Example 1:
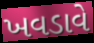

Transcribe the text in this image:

ખવડાવે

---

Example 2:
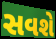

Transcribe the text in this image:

સવશે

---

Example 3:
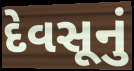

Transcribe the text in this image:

દેવસૂનું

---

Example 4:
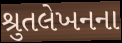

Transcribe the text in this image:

શ્રુતલેખનના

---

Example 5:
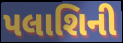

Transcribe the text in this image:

પલાશિની